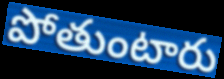
పోతుంటారు